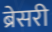
ब्रेसरी